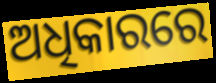
ଅଧିକାରରେ